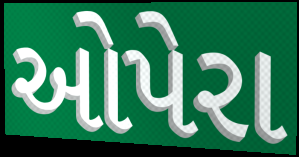
ઓપેરા